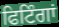
ਫਿਟਿੰਗਾਂ